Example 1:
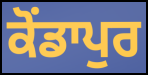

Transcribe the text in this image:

ਕੋਂਡਾਪੁਰ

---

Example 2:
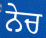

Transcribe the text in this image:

ਨੇਚ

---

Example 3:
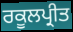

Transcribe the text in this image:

ਰਕੂਲਪ੍ਰੀਤ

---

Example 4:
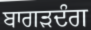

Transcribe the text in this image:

ਬਾਗੜਦੰਗ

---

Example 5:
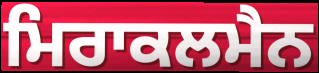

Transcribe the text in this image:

ਮਿਰਾਕਲਮੈਨ